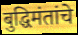
बुद्धिमंतांचे